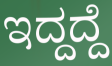
ಇದ್ದದ್ದೆ